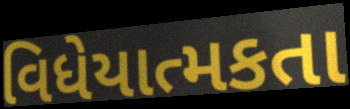
વિધેયાત્મકતા